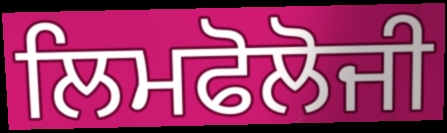
ਲਿਮਫੋਲੋਜੀ